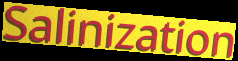
Salinization